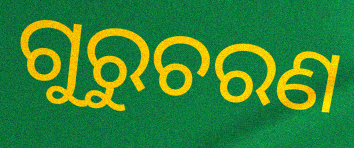
ଗୁରୁଚରଣ